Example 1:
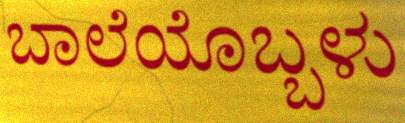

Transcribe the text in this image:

ಬಾಲೆಯೊಬ್ಬಳು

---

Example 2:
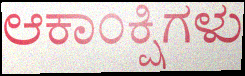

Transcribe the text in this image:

ಆಕಾಂಕ್ಷಿಗಳು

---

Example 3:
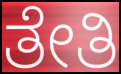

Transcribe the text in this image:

ತೇತಿ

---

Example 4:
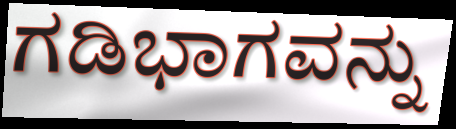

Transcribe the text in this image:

ಗಡಿಭಾಗವನ್ನು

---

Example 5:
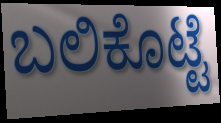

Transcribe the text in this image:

ಬಲಿಕೊಟ್ಟೆ